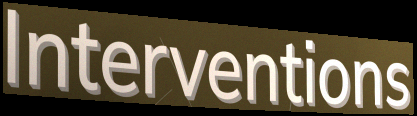
Interventions